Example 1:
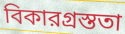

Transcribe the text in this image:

বিকারগ্রস্ততা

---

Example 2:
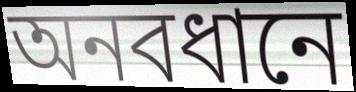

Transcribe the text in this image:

অনবধানে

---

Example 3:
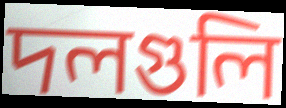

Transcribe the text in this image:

দলগুলি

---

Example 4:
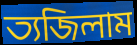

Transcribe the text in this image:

ত্যজিলাম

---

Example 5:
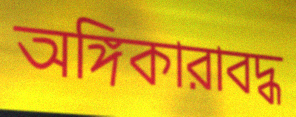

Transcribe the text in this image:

অঙ্গিকারাবদ্ধ